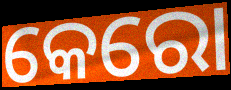
କେରୋ